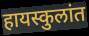
हायस्कुलांत